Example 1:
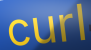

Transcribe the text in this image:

curl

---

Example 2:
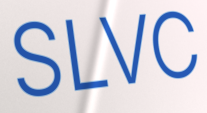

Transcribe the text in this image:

SLVC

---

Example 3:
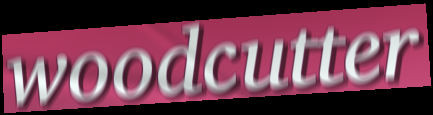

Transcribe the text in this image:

woodcutter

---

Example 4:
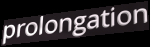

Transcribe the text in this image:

prolongation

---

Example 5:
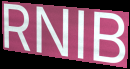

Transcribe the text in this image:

RNIB